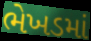
ભેખડમાં